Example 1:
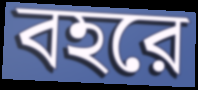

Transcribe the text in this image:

বহরে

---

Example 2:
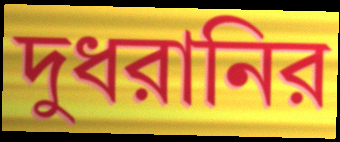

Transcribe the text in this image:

দুধরানির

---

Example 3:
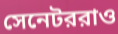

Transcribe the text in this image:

সেনেটররাও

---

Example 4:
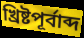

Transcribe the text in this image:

খ্রিষ্টপূর্বাব্দ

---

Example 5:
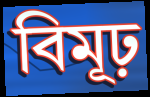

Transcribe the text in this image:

বিমূঢ়